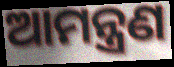
ଆମନ୍ତ୍ରଣ